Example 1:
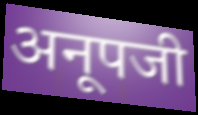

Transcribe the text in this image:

अनूपजी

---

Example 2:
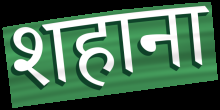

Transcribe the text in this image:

शहाना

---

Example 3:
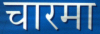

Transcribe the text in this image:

चारमा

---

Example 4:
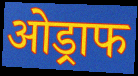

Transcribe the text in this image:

ओड्राफ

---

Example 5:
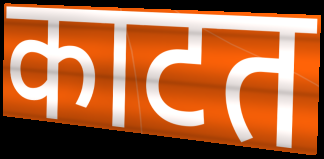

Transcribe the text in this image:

काटत